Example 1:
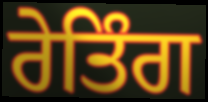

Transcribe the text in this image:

ਰੇਤਿੰਗ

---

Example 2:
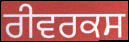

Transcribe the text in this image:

ਰੀਵਰਕਸ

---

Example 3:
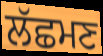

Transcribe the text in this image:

ਲੱਛਮਣ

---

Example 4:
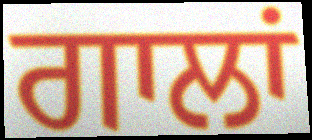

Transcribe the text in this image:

ਗਾਲਾਂ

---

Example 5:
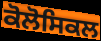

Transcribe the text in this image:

ਕੋਲੋਸਿਕਲ